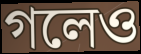
গলেও